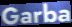
Garba